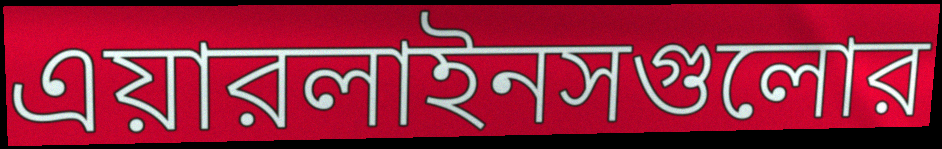
এয়ারলাইনসগুলোর